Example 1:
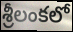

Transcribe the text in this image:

శ్రీలంకలో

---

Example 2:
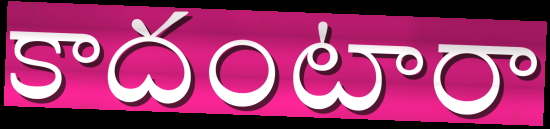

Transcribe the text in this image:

కాదంటారా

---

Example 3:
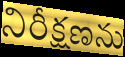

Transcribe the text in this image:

నిరీక్షణను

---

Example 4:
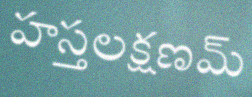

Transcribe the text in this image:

హస్తలక్షణమ్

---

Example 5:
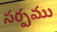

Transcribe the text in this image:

సర్పము